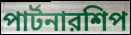
পার্টনারশিপ